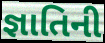
જ્ઞાતિની